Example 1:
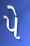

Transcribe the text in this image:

પે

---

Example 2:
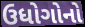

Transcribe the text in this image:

ઉધોગોનો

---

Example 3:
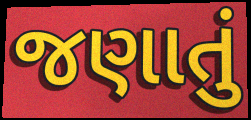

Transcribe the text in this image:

જણાતું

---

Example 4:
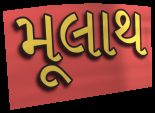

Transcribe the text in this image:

મૂલાથ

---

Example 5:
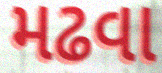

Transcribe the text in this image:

મઢવા